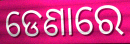
ଡେଣାରେ